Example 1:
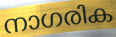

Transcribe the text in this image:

നാഗരിക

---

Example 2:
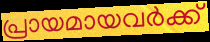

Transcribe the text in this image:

പ്രായമായവർക്ക്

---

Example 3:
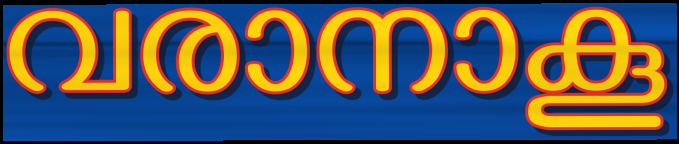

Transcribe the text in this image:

വരാനാകൂ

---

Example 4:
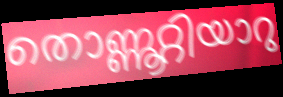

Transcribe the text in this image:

തൊണ്ണൂറ്റിയാറു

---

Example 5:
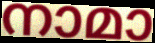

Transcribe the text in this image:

നാമാ